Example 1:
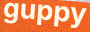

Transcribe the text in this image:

guppy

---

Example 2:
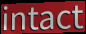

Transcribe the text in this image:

intact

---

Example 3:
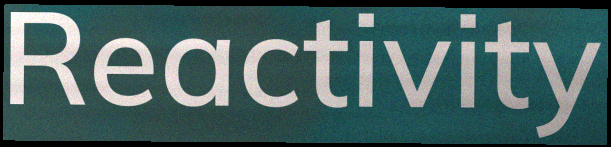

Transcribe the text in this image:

Reactivity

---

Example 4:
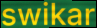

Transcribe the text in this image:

swikar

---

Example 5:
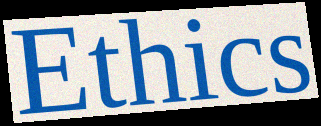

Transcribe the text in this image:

Ethics